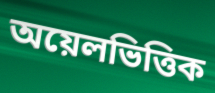
অয়েলভিত্তিক